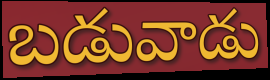
బడువాడు